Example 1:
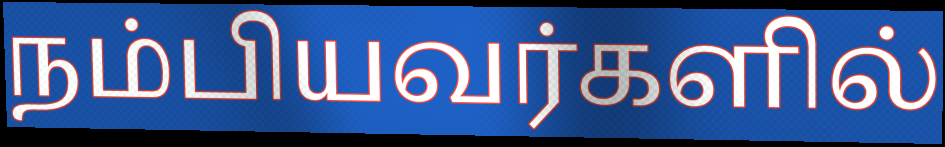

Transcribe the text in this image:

நம்பியவர்களில்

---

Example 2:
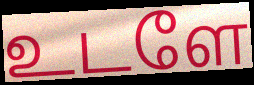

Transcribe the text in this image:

உடளே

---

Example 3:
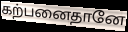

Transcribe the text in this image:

கற்பனைதானே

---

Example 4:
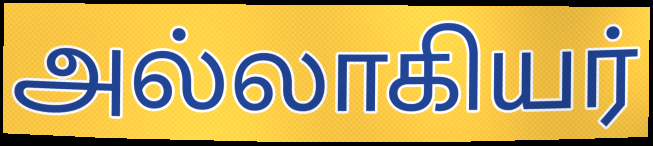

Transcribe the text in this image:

அல்லாகியர்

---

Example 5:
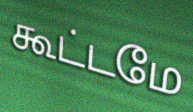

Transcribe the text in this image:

கூட்டமே